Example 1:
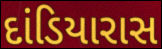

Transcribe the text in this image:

દાંડિયારાસ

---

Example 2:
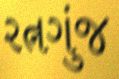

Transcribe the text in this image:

રત્નગુંજ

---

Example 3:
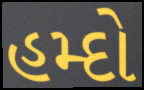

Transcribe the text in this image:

હમ્દો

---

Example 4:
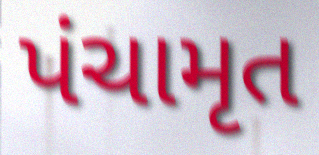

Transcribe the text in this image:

પંચામૃત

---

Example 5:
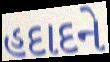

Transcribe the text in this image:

હદાદને